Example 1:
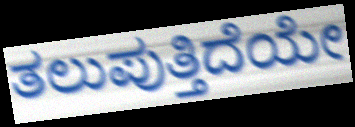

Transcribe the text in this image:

ತಲುಪುತ್ತಿದೆಯೇ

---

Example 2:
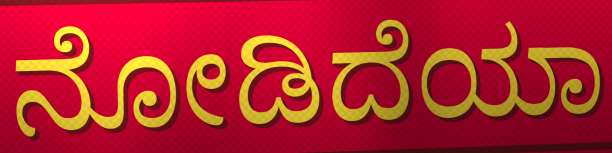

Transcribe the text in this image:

ನೋಡಿದೆಯಾ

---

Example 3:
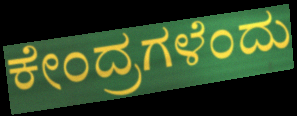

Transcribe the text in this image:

ಕೇಂದ್ರಗಳೆಂದು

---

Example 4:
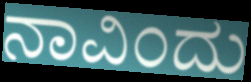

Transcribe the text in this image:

ನಾವಿಂದು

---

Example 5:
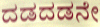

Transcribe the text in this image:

ದಡದಡನೇ